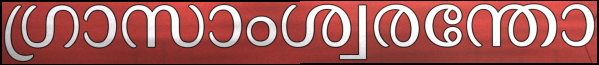
ഗ്രാസാംശ്വരന്തോ